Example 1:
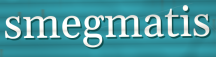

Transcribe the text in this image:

smegmatis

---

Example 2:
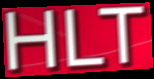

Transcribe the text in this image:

HLT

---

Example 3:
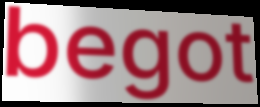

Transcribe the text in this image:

begot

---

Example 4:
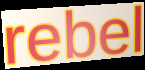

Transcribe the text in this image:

rebel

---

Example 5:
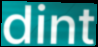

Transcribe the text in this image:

dint